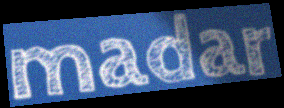
madar